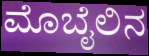
ಮೊಬೈಲಿನ